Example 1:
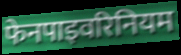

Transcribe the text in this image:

फेनपाइवरिनियम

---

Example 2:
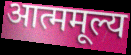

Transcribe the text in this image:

आत्ममूल्य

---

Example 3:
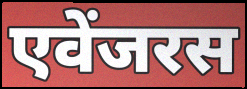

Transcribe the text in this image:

एवेंजरस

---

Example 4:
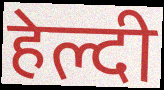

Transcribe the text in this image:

हेल्दी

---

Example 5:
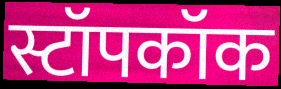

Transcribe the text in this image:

स्टॉपकॉक